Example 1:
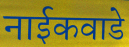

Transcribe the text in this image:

नाईकवाडे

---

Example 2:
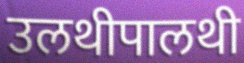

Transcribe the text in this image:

उलथीपालथी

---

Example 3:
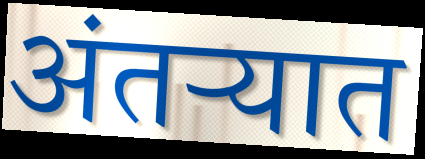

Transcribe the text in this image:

अंतऱ्यात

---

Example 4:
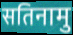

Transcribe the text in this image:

सतिनामु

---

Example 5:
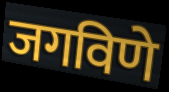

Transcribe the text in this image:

जगविणे